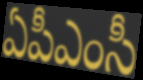
ఏపీఎంసీ